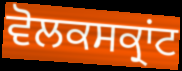
ਵੋਲਕਸਕ੍ਰਾਂਟ